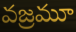
వజ్రమూ